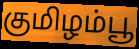
குமிழம்பூ